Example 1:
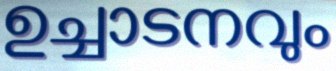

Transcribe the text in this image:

ഉച്ചാടനവും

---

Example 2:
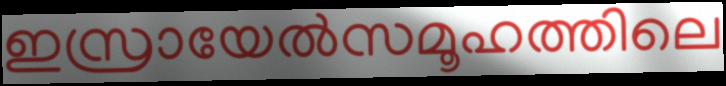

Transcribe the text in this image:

ഇസ്രായേൽസമൂഹത്തിലെ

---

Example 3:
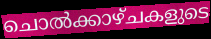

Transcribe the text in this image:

ചൊൽക്കാഴ്ചകളുടെ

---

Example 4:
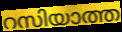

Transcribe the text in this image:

റസിയാത്ത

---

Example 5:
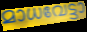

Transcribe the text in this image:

മാധവേട്ടാ